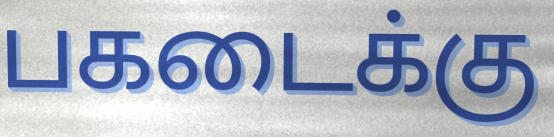
பகடைக்கு